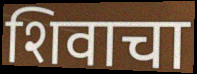
शिवाचा